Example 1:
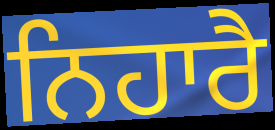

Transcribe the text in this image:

ਨਿਹਾਰੈ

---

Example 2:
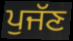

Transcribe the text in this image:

ਪੁਜੱਣ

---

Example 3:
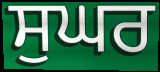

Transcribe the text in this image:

ਸੁਘਰ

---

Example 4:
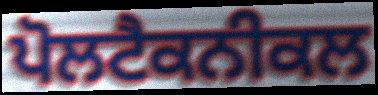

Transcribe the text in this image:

ਪੋਲਟੈਕਨੀਕਲ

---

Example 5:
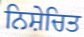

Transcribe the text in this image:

ਨਿਸ਼ੇਚਿਤ